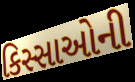
કિસ્સાઓની